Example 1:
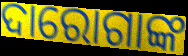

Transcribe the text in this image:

ଦାରୋଗାଙ୍କ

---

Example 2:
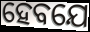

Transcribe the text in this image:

ହେବଯେ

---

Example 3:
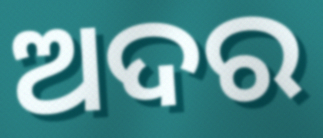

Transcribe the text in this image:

ଅଦର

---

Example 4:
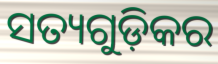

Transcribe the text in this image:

ସତ୍ୟଗୁଡ଼ିକର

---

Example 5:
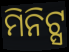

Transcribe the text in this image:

ମିନିଟ୍ସ